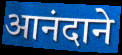
आनंदाने